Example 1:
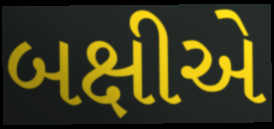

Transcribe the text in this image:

બક્ષીએ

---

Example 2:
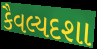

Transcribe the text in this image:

કૈવલ્યદશા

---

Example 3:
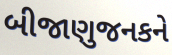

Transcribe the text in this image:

બીજાણુજનકને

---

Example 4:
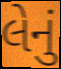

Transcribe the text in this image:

લેનું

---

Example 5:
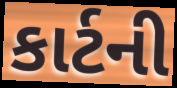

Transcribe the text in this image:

કાર્ટની